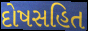
દોષસહિત